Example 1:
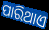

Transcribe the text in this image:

ପାରିଥାଏ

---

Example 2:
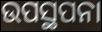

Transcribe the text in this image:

ଉପସ୍ଥପନା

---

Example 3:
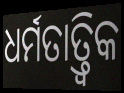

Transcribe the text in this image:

ଧର୍ମତାତ୍ତ୍ଵିକ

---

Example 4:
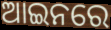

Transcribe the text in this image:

ଆଇନରେ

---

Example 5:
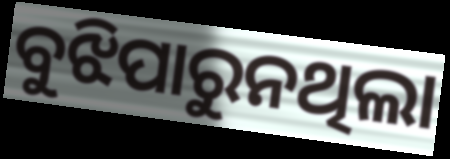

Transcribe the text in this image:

ବୁଝିପାରୁନଥିଲା